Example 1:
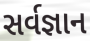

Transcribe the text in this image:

સર્વજ્ઞાન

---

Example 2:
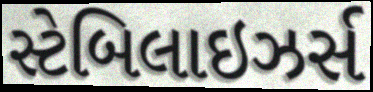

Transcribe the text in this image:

સ્ટેબિલાઇઝર્સ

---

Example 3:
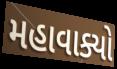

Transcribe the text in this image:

મહાવાક્યો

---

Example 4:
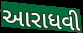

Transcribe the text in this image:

આરાધવી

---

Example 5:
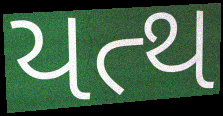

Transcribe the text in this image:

યત્થ